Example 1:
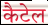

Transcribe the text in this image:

कैटेल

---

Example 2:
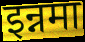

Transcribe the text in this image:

इन्नमा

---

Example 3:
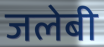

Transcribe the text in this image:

जलेबी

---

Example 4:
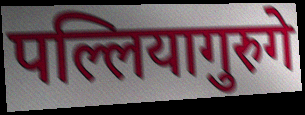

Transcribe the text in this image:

पल्लियागुरुगे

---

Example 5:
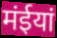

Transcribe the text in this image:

मंईयां